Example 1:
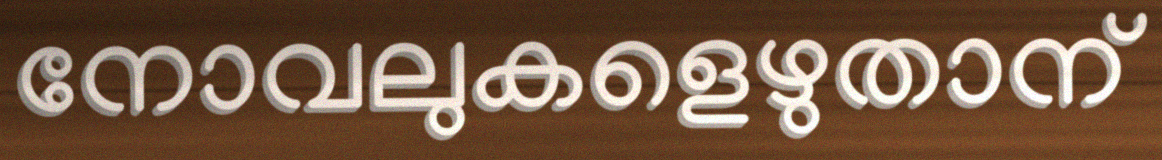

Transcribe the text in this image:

നോവലുകളെഴുതാന്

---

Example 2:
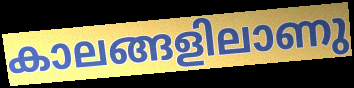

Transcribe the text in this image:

കാലങ്ങളിലാണു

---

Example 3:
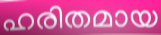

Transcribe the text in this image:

ഹരിതമായ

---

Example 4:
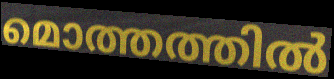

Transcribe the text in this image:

മൊത്തത്തിൽ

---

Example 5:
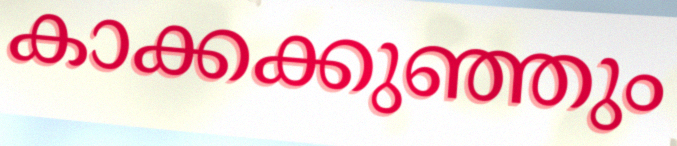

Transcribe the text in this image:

കാക്കക്കുഞ്ഞും